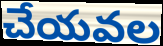
చేయవల